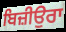
ਬਿਜ਼ੀਉਰਾ